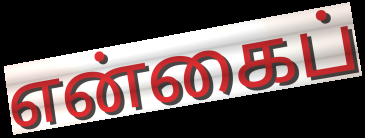
என்கைப்